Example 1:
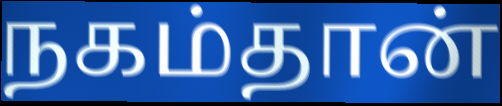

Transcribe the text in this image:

நகம்தான்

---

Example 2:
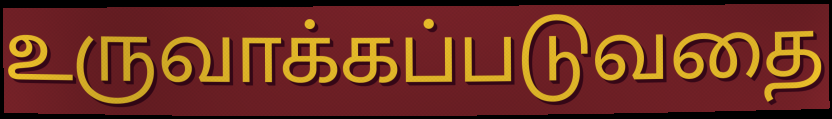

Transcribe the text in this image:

உருவாக்கப்படுவதை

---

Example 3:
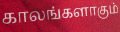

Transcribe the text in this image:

காலங்களாகும்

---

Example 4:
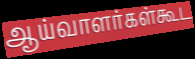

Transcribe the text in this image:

ஆய்வாளர்கள்கூட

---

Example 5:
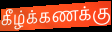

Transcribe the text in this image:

கீழ்க்கணக்கு